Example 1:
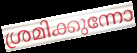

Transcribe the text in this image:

ശ്രമിക്കുന്നോ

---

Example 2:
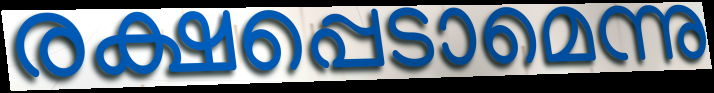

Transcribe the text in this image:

രക്ഷപ്പെടാമെന്നു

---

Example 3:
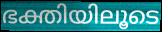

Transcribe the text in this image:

ഭക്തിയിലൂടെ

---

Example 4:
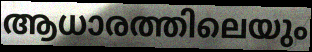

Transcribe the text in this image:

ആധാരത്തിലെയും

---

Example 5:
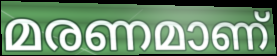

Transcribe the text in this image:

മരണമാണ്